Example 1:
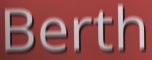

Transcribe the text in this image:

Berth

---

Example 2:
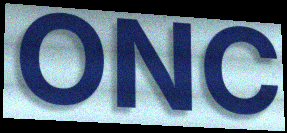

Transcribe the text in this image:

ONC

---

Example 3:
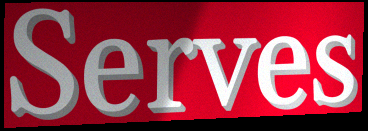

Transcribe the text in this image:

Serves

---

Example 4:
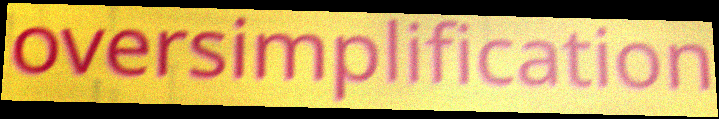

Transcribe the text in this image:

oversimplification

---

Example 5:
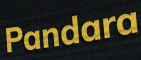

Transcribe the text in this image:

Pandara